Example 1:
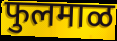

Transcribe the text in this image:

फुलमाळ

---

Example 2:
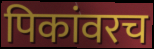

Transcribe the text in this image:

पिकांवरच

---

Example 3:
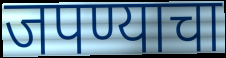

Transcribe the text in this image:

जपण्याचा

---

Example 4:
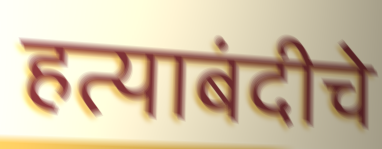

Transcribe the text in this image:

हत्याबंदीचे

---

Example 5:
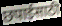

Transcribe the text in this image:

छपाईसाठी